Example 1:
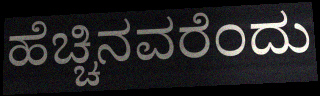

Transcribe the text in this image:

ಹೆಚ್ಚಿನವರೆಂದು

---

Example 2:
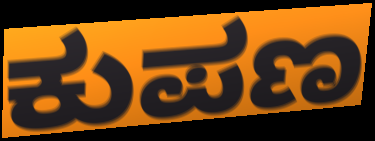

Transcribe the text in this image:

ಕುಪಣ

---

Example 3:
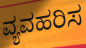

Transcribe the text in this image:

ವ್ಯವಹರಿಸ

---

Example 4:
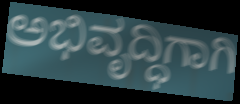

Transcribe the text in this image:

ಅಭಿವೃದ್ಧಿಗಾಗಿ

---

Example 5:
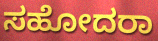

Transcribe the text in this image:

ಸಹೋದರಾ